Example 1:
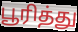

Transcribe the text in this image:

பூரித்து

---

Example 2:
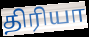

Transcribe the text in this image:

திரியா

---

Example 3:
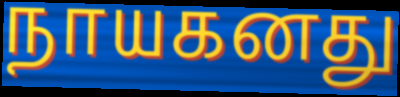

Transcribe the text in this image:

நாயகனது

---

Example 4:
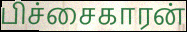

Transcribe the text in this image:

பிச்சைகாரன்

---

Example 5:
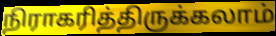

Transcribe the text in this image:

நிராகரித்திருக்கலாம்